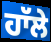
ਹਾੱਲੇ